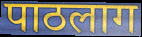
पाठलाग